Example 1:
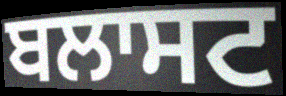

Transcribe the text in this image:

ਬਲਾਸਟ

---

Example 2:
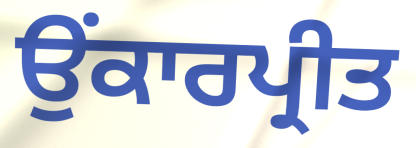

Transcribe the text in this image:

ਉਂਕਾਰਪ੍ਰੀਤ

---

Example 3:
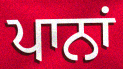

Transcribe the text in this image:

ਪਾਨਾਂ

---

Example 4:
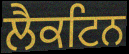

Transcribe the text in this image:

ਲੈਕਟਿਨ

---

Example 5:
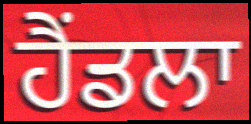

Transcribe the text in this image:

ਹੈਂਡਲਾ